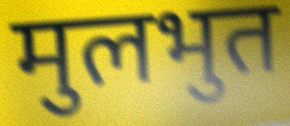
मुलभुत